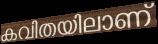
കവിതയിലാണ്